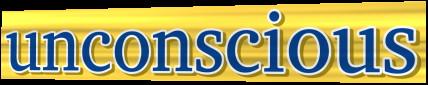
unconscious